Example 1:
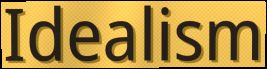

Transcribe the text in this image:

Idealism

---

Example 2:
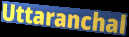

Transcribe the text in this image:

Uttaranchal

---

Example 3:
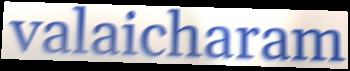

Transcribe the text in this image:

valaicharam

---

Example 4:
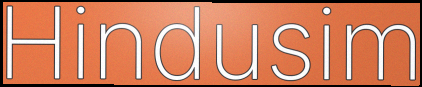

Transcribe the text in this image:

Hindusim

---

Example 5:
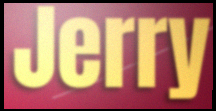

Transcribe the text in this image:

Jerry